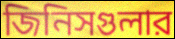
জিনিসগুলার